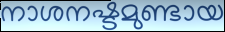
നാശനഷ്ടമുണ്ടായ